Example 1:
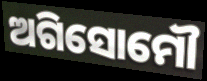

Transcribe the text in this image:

ଅଗିସୋମୌ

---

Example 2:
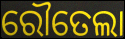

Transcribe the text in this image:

ରୌତେଲା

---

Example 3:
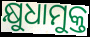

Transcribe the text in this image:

କ୍ଷୁଧାମୁକ୍ତ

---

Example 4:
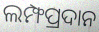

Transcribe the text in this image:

ଲମ୍ଫପ୍ରଦାନ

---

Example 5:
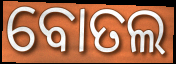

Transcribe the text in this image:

ବୋତଲ